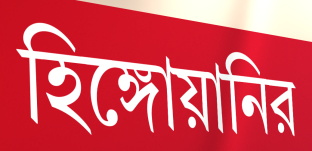
হিঙ্গোয়ানির